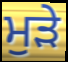
ਮੁੜੇ